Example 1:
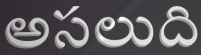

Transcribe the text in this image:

అసలుది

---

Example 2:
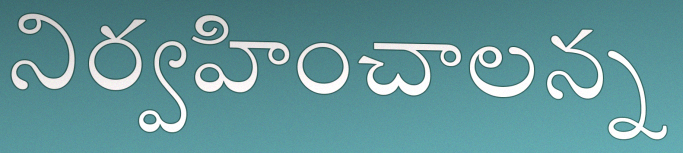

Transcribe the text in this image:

నిర్వహించాలన్న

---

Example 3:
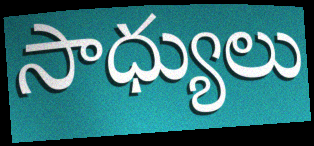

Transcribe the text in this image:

సాధ్యులు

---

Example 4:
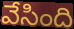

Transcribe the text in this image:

వేసింది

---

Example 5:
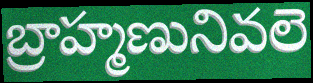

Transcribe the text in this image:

బ్రాహ్మణునివలె